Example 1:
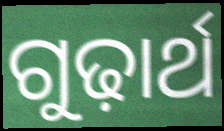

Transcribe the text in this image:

ଗୁଢ଼ାର୍ଥ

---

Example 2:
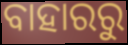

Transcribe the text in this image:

ବାହାରରୁ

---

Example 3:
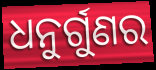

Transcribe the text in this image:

ଧନୁର୍ଗୁଣର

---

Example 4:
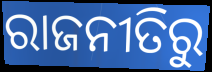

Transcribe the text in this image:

ରାଜନୀତିରୁ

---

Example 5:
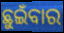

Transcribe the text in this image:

ଛୁଇଁବାର